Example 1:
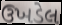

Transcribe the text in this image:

ઉખડેલ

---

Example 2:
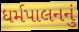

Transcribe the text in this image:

ધર્મપાલનનું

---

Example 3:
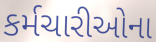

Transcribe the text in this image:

કર્મચારીઓના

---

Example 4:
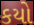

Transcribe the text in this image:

કયો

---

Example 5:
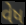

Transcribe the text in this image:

વેષ